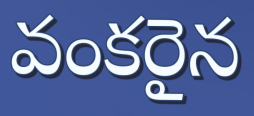
వంకరైన